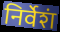
निर्वेशं